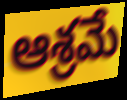
ఆశ్రమే